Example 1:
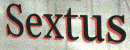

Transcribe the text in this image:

Sextus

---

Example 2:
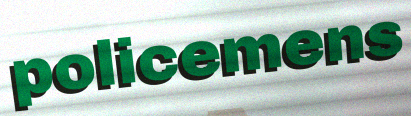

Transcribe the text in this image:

policemens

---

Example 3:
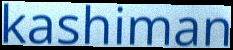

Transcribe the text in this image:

kashiman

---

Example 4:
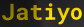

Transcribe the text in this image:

Jatiyo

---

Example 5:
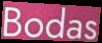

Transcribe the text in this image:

Bodas